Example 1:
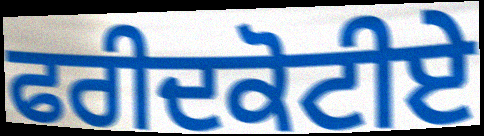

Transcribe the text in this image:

ਫਰੀਦਕੋਟੀਏ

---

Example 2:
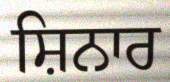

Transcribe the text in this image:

ਸ਼ਿਨਾਰ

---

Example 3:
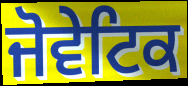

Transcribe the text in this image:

ਜੋਵੇਟਿਕ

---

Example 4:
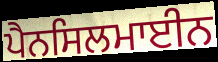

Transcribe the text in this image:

ਪੈਨਸਿਲਮਾਈਨ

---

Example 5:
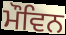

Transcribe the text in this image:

ਮੌਵਿਨ